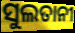
ସୁଲତାନୀ